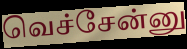
வெச்சேன்னு